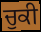
ਚੁਕੀ